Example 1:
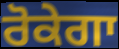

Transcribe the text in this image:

ਰੋਕੇਗਾ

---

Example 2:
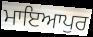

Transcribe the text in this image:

ਮਾਇਆਪੁਰ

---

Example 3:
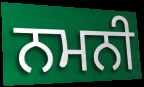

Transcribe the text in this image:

ਨਮਨੀ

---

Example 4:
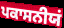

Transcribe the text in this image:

ਪਕਾਸਨੀਯਂ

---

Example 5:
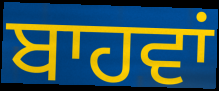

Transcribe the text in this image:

ਬਾਹਵਾਂ